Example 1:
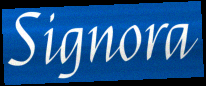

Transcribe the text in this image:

Signora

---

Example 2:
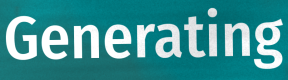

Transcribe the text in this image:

Generating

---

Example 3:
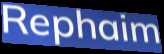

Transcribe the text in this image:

Rephaim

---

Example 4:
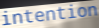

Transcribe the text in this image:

intention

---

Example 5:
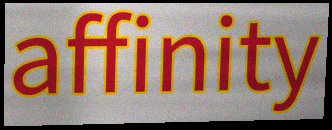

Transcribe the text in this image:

affinity